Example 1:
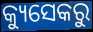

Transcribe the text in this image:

କ୍ୟୁସେକରୁ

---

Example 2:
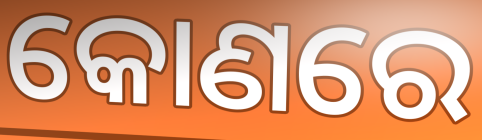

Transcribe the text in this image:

କୋଣରେ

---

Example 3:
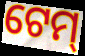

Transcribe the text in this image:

ଟେମ୍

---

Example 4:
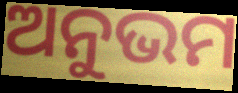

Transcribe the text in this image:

ଅନୁଭମ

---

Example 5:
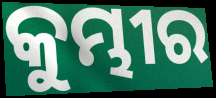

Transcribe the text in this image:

କୁମ୍ଭୀର